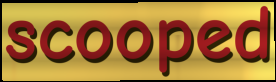
scooped